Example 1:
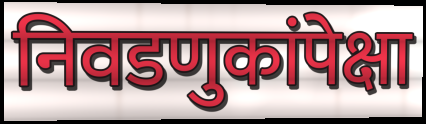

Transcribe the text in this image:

निवडणुकांपेक्षा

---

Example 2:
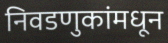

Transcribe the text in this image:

निवडणुकांमधून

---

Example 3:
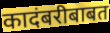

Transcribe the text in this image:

कादंबरीबाबत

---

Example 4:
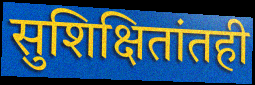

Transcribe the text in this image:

सुशिक्षितांतही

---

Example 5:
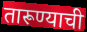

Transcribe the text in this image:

तारूण्याची